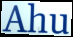
Ahu